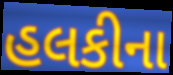
હલકીના